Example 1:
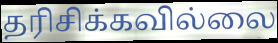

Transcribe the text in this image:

தரிசிக்கவில்லை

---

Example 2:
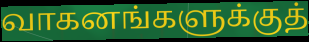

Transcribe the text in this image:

வாகனங்களுக்குத்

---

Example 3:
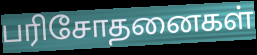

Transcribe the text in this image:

பரிசோதனைகள்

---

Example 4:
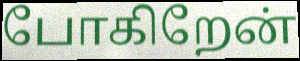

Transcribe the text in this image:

போகிறேன்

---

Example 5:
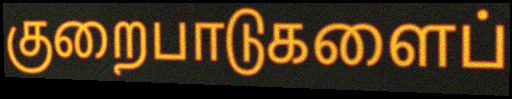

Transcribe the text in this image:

குறைபாடுகளைப்